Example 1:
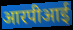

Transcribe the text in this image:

आरपीआई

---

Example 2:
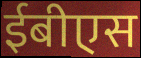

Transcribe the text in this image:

ईबीएस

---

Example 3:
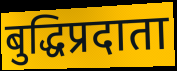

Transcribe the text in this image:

बुद्धिप्रदाता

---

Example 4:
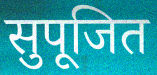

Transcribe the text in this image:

सुपूजित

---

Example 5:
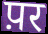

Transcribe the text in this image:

प़र